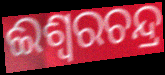
ଈଶ୍ୱରଚନ୍ଦ୍ର